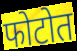
फोटोत